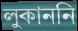
লুকাননি